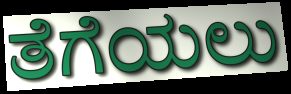
ತೆಗೆಯಲು